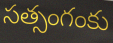
సత్సంగంకు